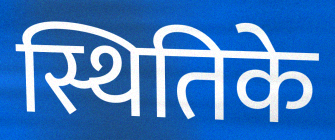
स्थितिके